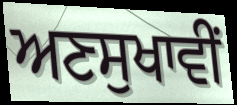
ਅਣਸੁਖਾਵੀਂ